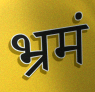
भ्रमं